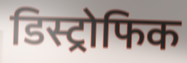
डिस्ट्रोफिक